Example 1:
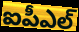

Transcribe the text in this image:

ఐపీఎల్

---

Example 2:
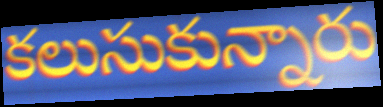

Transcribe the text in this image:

కలుసుకున్నారు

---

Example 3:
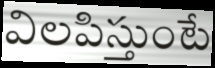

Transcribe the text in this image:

విలపిస్తుంటే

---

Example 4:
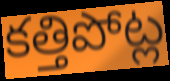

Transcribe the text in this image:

కత్తిపోట్ల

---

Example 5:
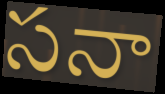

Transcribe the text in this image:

సనా